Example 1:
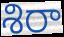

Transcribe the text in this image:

శిరా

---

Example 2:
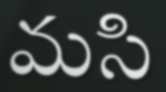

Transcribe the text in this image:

మసి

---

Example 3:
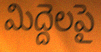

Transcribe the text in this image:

మిద్దెలపై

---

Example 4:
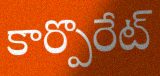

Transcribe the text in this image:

కార్పొరేట్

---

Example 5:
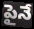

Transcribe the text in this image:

పైనే